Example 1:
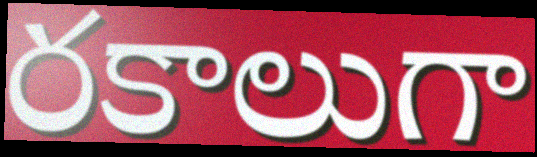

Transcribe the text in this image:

రకాలుగా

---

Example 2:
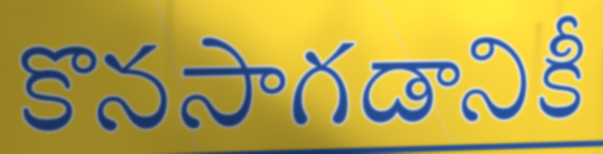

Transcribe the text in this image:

కొనసాగడానికీ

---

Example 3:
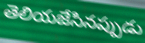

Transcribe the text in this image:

తెలియజేసినప్పుడు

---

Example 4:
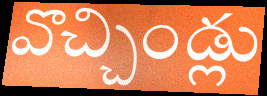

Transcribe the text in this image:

వొచ్చిండ్లు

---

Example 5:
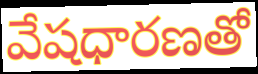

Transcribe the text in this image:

వేషధారణతో